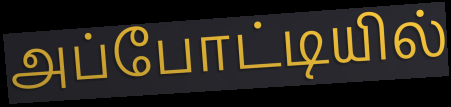
அப்போட்டியில்